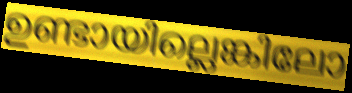
ഉണ്ടായില്ലെങ്കിലോ